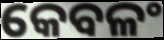
କେବଳଂ